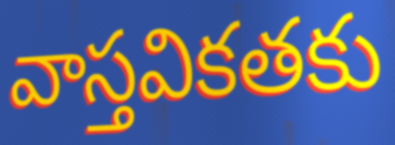
వాస్తవికతకు